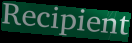
Recipient